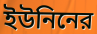
ইউনিনের